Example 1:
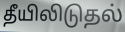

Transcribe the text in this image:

தீயிலிடுதல்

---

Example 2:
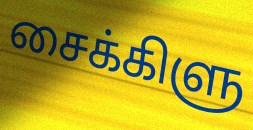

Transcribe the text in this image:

சைக்கிளு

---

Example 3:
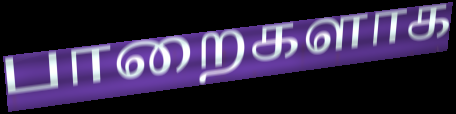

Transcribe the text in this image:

பாறைகளாக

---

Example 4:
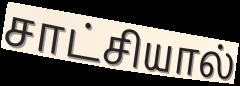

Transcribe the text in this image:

சாட்சியால்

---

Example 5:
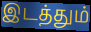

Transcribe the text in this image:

இடத்தும்